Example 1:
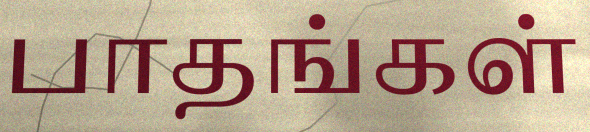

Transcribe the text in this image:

பாதங்கள்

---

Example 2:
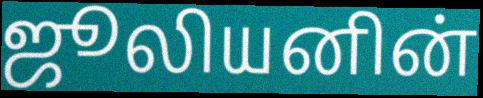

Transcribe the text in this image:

ஜூலியனின்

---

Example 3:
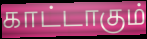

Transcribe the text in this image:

காட்டாகும்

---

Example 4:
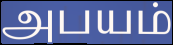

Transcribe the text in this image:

அபயம்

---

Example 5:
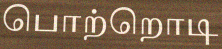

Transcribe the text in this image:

பொற்றொடி